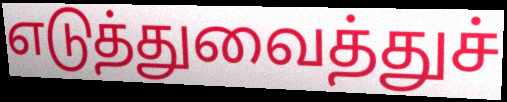
எடுத்துவைத்துச்